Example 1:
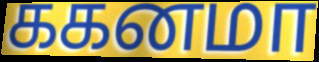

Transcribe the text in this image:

ககனமா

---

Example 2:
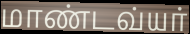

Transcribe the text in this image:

மாண்டவ்யர்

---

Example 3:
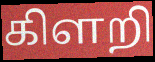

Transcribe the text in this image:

கிளறி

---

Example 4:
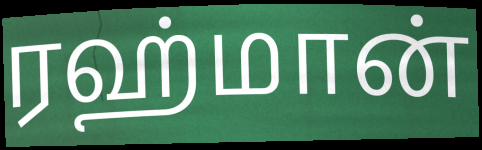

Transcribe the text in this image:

ரஹ்மான்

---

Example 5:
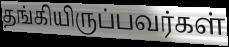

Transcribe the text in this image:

தங்கியிருப்பவர்கள்